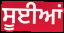
ਸੂਈਆਂ